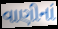
વાણીનાં